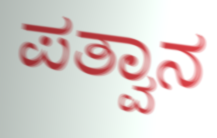
ಪತ್ವಾನ